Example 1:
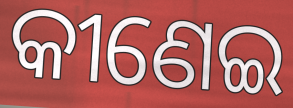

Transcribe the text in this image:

କୀଣେଇ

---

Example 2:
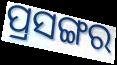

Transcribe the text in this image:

ପ୍ରସଙ୍ଗର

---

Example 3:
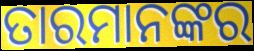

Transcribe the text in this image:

ତାରମାନଙ୍କର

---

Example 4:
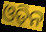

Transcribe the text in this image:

ଓଡ଼ିନ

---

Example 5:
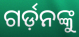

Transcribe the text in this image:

ଗର୍ଡ଼ନଙ୍କୁ